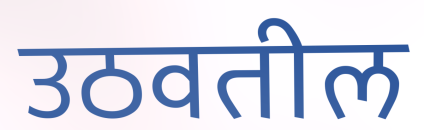
उठवतील